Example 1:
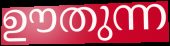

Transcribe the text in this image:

ഊതുന്ന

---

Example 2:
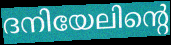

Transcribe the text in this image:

ദനിയേലിന്റെ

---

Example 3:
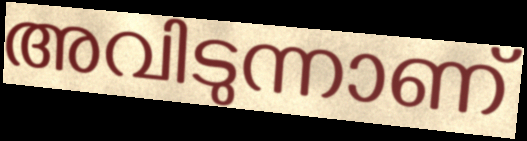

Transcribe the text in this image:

അവിടുന്നാണ്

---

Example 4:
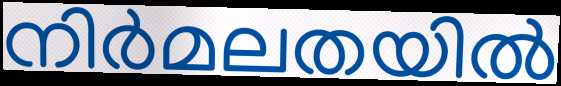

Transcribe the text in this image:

നിർമലതയിൽ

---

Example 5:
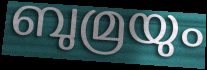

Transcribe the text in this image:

ബുമ്രയും